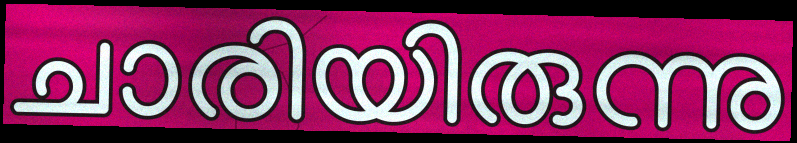
ചാരിയിരുന്നു